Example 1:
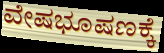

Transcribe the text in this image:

ವೇಷಭೂಷಣಕ್ಕೆ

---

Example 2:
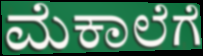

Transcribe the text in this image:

ಮೆಕಾಲೆಗೆ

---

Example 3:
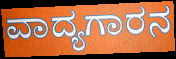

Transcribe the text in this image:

ವಾದ್ಯಗಾರನ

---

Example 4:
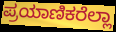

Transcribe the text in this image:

ಪ್ರಯಾಣಿಕರೆಲ್ಲಾ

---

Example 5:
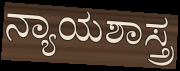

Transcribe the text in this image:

ನ್ಯಾಯಶಾಸ್ತ್ರ